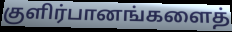
குளிர்பானங்களைத்